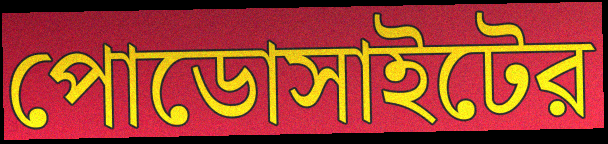
পোডোসাইটের